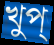
খুপ্